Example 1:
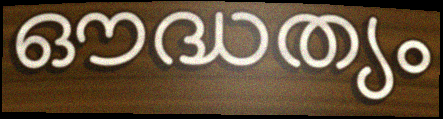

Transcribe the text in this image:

ഔദ്ധത്യം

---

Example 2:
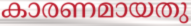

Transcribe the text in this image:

കാരണമായതു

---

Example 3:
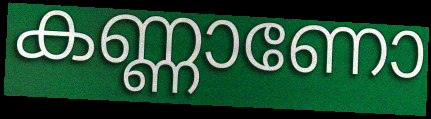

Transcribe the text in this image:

കണ്ണാണോ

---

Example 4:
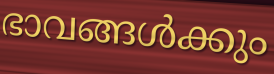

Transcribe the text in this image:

ഭാവങ്ങൾക്കും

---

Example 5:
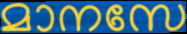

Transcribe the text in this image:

മാനസേ